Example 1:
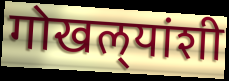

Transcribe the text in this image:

गोखल्यांशी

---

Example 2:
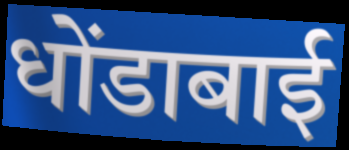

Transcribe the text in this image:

धोंडाबाई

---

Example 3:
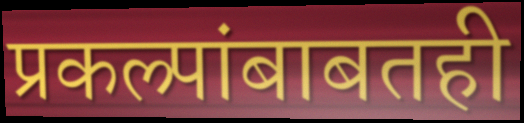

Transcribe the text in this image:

प्रकल्पांबाबतही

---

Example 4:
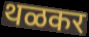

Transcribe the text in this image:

थळकर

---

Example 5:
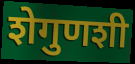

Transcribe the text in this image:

शेगुणशी